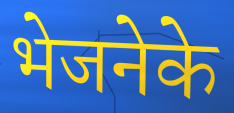
भेजनेके